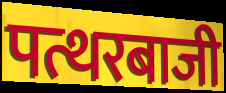
पत्थरबाजी